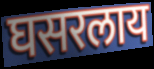
घसरलाय